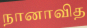
நானாவித